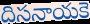
దిసనాయకె